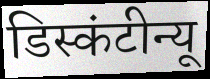
डिस्कंटीन्यू